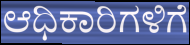
ಆಧಿಕಾರಿಗಳಿಗೆ